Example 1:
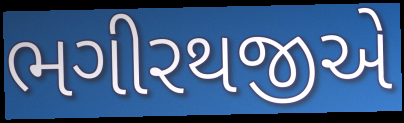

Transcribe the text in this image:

ભગીરથજીએ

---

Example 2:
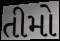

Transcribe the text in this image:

તીમો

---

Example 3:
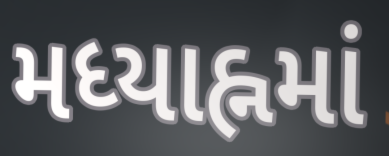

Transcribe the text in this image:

મધ્યાહ્નમાં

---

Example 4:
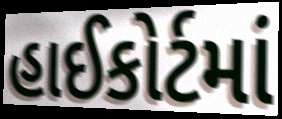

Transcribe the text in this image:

હાઈકોર્ટમાં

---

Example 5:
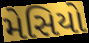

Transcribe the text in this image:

મેસિયો